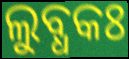
ଲୁବ୍ଧକଃ